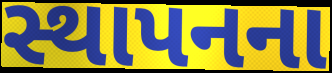
સ્થાપનના